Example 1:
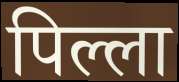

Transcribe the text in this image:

पिल्ला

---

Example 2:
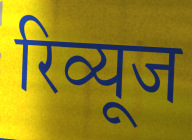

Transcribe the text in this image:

रिव्यूज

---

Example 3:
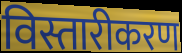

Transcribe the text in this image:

विस्तारीकरण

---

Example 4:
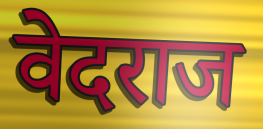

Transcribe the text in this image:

वेदराज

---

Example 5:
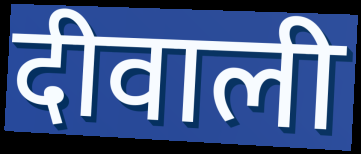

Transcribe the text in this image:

दीवाली